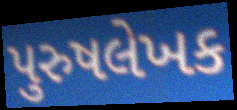
પુરુષલેખક